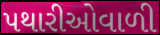
પથારીઓવાળી